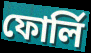
ফোর্লি